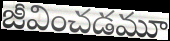
జీవించడమూ